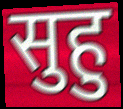
सुहु